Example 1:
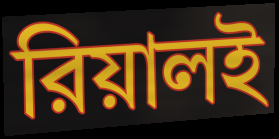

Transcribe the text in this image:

রিয়ালই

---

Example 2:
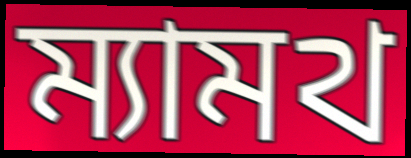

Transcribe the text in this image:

ম্যামথ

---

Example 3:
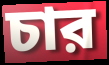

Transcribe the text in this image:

চার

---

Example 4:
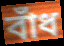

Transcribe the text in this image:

বাঁধ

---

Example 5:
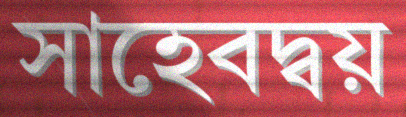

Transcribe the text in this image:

সাহেবদ্বয়